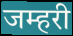
जम्हरी